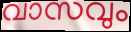
വാസവും